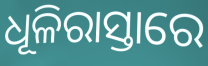
ଧୂଳିରାସ୍ତାରେ